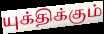
யுக்திக்கும்